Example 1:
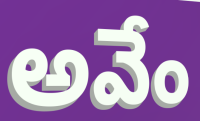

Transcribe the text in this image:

అవేం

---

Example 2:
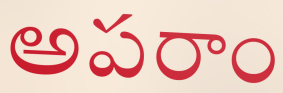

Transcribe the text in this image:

అపరాం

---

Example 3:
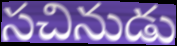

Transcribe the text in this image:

సచినుడు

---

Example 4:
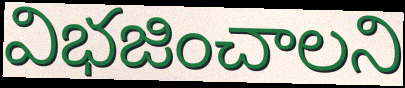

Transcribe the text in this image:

విభజించాలని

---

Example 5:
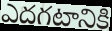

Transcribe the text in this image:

ఎదగటానికి